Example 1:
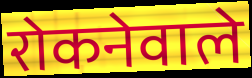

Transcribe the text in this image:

रोकनेवाले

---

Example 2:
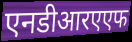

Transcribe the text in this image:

एनडीआरएएफ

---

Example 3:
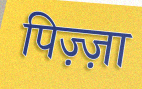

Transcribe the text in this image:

पिज़्ज़ा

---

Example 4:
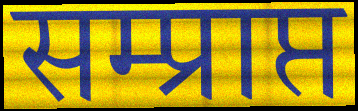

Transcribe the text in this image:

सम्प्राप्त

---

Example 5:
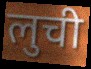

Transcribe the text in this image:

लुची